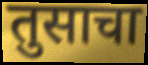
तुसाचा